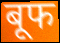
बूफ